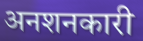
अनशनकारी